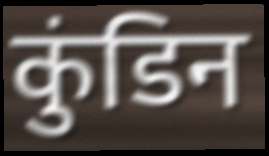
कुंडिन